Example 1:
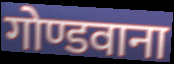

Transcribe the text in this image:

गोण्डवाना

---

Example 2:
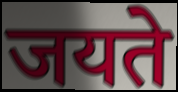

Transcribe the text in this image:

जयते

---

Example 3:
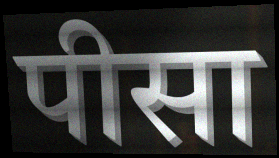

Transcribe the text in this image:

पीसा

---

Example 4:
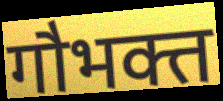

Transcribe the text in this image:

गौभक्त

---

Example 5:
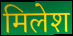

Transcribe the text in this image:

मिलेश